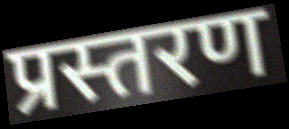
प्रस्तरण